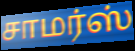
சாமர்ஸ்